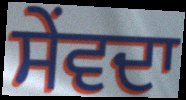
ਸੇਂਵਦਾ